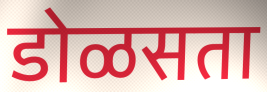
डोळसता